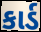
કાર્ડ